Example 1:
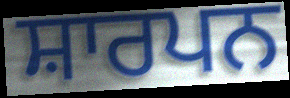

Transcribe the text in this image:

ਸ਼ਾਰਪਨ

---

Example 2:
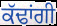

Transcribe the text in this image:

ਕੱਢਾਂਗੀ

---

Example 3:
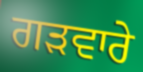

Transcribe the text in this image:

ਗੜਵਾਰੇ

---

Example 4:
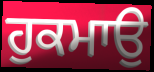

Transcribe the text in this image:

ਹੁਕਮਾਉ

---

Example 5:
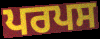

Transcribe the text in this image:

ਪਰਪਸ